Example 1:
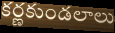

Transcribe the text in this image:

కర్ణకుండలాలు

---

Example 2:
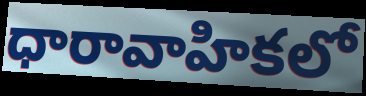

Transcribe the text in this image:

ధారావాహికలో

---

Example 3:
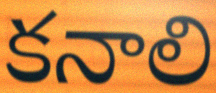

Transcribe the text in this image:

కనాలి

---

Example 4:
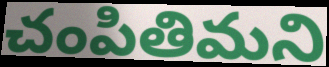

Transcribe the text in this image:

చంపితిమని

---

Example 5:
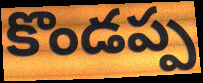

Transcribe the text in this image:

కొండప్ప